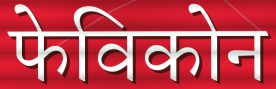
फेविकोन